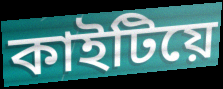
কাইটিয়ে